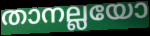
താനല്ലയോ